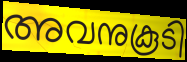
അവനുകൂടി